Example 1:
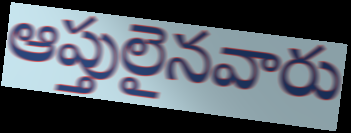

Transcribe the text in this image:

ఆప్తులైనవారు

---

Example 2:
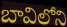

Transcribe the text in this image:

బావిలోని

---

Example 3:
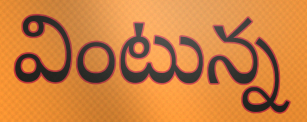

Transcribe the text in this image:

వింటున్న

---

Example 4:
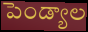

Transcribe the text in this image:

పెండ్యాల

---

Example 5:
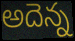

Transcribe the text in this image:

అదెన్న